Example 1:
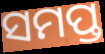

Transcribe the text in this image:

ସମପ୍ତ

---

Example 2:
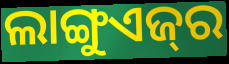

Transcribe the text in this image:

ଲାଙ୍ଗୁଏଜ୍‌ର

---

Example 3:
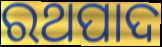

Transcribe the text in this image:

ରଥପାଦ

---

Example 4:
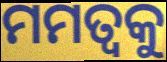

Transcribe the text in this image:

ମମତ୍ୱକୁ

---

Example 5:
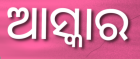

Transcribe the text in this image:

ଆସ୍କାର